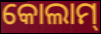
କୋଲାମ୍